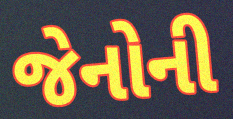
જેનોની